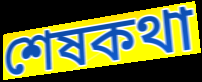
শেষকথা